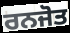
ਰਨਜੋਤ